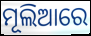
ମୂଲିଆରେ